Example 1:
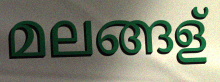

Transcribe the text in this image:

മലങ്ങള്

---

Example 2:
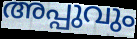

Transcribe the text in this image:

അപ്പുവും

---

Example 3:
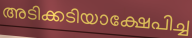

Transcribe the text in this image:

അടിക്കടിയാക്ഷേപിച്ച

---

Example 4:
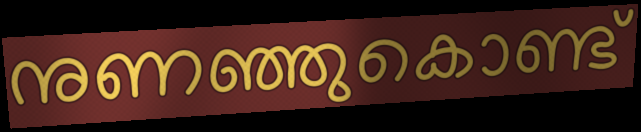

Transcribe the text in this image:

നുണഞ്ഞുകൊണ്ട്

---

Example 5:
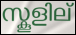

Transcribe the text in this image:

സ്കൂളില്